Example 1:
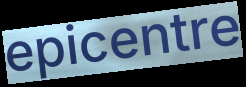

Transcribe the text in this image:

epicentre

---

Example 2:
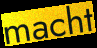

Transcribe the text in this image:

macht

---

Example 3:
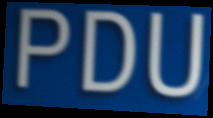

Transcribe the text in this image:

PDU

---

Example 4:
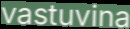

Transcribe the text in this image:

vastuvina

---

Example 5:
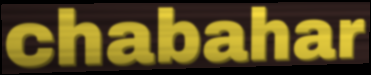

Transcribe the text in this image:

chabahar